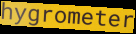
hygrometer